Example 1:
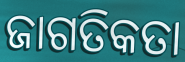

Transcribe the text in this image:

ଜାଗତିକତା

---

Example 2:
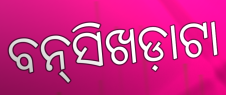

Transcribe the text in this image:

ବନ୍‌ସିଖଡ଼ାଟା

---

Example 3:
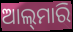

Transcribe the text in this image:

ଆଲ୍‌ମାରି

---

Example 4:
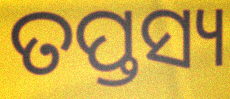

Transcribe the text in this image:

ତପ୍ତସ୍ୟ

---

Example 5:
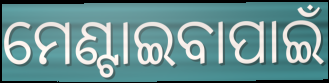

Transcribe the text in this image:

ମେଣ୍ଟାଇବାପାଇଁ